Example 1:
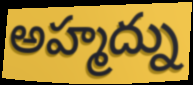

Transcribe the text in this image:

అహ్మద్ను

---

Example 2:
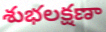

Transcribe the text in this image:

శుభలక్షణా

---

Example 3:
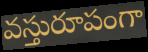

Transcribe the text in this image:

వస్తురూపంగా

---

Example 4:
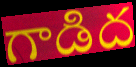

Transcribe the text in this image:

గాడిద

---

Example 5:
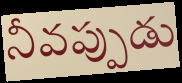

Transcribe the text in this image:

నీవప్పుడు